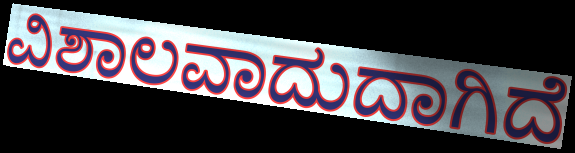
ವಿಶಾಲವಾದುದಾಗಿದೆ